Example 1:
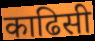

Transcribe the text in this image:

काढिसी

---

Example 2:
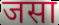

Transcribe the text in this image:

जसा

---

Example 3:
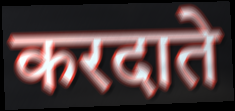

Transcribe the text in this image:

करदाते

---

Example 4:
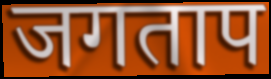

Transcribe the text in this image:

जगताप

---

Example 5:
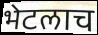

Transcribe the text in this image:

भेटलाच